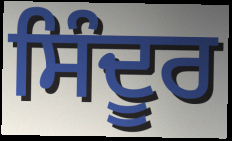
ਸਿੰਦੂਰ